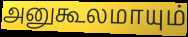
அனுகூலமாயும்